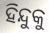
ହିନ୍ଦୁକୁ